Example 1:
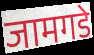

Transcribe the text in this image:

जामगडे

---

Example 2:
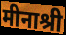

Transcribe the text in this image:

मीनाश्री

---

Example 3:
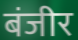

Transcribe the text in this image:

बंजीर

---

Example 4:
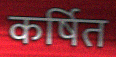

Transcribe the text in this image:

कर्षित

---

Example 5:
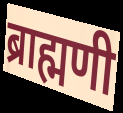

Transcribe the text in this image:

ब्राह्मणी